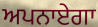
ਅਪਨਾਏਗਾ